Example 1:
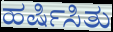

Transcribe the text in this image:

ಹರ್ಷಿಸಿತು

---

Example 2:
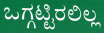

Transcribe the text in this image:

ಒಗ್ಗಟ್ಟಿರಲಿಲ್ಲ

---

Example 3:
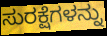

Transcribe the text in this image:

ಸುರಕ್ಷೆಗಳನ್ನು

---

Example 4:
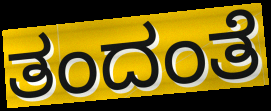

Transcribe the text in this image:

ತಂದಂತೆ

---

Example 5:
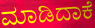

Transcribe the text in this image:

ಮಾಡಿದಾಕೆ